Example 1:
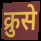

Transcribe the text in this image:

क्रुसे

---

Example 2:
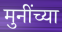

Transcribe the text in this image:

मुनींच्या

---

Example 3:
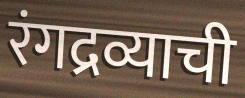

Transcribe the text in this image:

रंगद्रव्याची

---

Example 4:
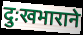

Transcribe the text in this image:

दुःखभाराने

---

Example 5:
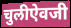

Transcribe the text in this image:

चुलीऐवजी